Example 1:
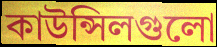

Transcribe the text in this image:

কাউন্সিলগুলো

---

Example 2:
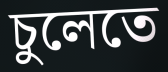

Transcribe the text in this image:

চুলেতে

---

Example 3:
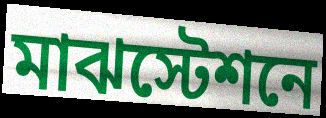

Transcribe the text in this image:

মাঝস্টেশনে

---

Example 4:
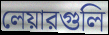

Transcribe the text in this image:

লেয়ারগুলি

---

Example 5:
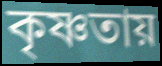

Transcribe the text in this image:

কৃষ্ণতায়